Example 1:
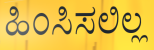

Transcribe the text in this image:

ಹಿಂಸಿಸಲಿಲ್ಲ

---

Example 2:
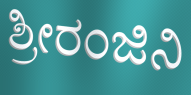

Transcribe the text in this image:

ಶ್ರೀರಂಜಿನಿ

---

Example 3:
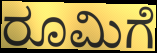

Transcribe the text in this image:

ರೂಮಿಗೆ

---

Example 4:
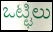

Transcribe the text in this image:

ಒಟ್ಟಿಲು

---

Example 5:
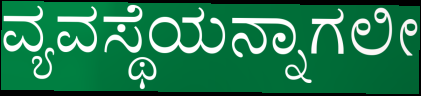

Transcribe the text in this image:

ವ್ಯವಸ್ಥೆಯನ್ನಾಗಲೀ